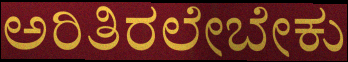
ಅರಿತಿರಲೇಬೇಕು